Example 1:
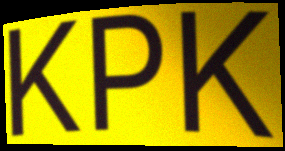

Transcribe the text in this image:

KPK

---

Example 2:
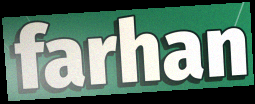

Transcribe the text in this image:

farhan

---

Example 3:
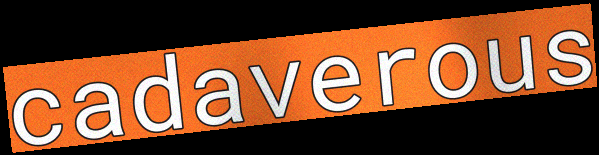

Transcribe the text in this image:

cadaverous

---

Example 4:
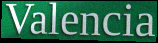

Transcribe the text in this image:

Valencia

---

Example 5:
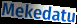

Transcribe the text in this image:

Mekedatu